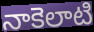
నాకెలాటి